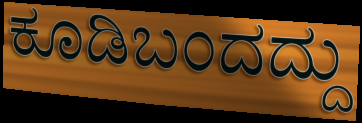
ಕೂಡಿಬಂದದ್ದು